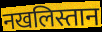
नखलिस्तान